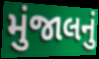
મુંજાલનું